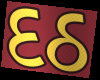
દઠ